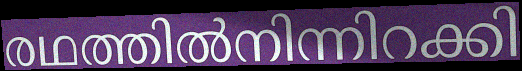
രഥത്തിൽനിന്നിറക്കി